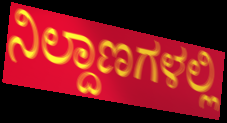
ನಿಲ್ದಾಣಗಳಲ್ಲಿ